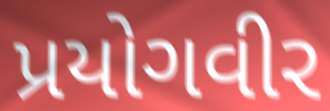
પ્રયોગવીર